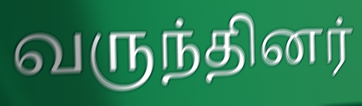
வருந்தினர்